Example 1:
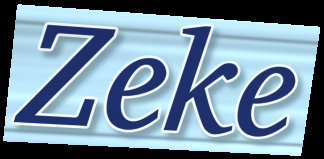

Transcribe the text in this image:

Zeke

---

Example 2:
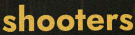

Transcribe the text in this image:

shooters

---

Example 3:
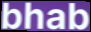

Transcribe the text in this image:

bhab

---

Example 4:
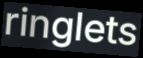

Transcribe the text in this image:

ringlets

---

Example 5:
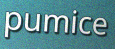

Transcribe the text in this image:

pumice